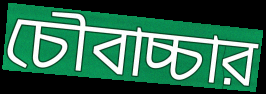
চৌবাচ্চার